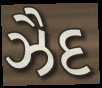
ઝૈદ